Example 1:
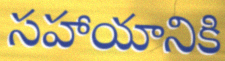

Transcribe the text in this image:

సహాయానికి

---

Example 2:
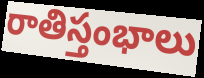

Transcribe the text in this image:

రాతిస్తంభాలు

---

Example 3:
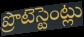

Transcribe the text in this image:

ప్రొటెస్టెంట్లు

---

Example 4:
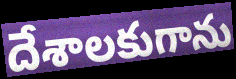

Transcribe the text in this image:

దేశాలకుగాను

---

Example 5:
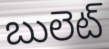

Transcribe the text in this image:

బులెట్